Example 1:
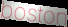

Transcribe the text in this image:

boston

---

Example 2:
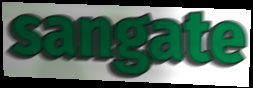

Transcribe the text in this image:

sangate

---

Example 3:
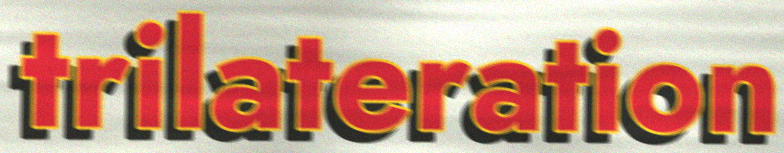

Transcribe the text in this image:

trilateration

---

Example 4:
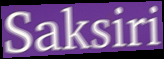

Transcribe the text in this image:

Saksiri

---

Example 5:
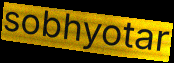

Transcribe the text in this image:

sobhyotar